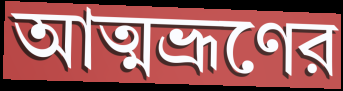
আত্মভ্রূণের